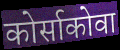
कोर्साकोवा